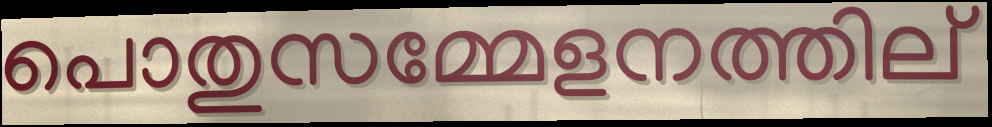
പൊതുസമ്മേളനത്തില്